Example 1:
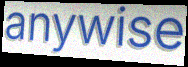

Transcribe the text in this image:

anywise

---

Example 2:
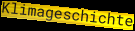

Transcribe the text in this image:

Klimageschichte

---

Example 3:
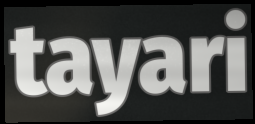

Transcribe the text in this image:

tayari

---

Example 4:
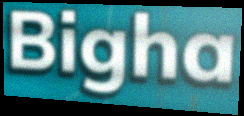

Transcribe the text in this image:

Bigha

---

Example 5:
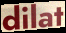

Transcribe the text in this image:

dilat